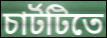
চার্টটিতে